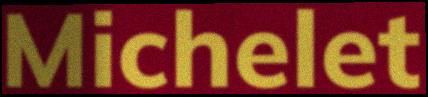
Michelet